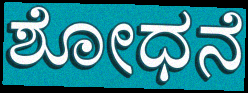
ಶೋಧನೆ